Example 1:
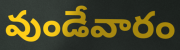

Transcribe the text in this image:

వుండేవారం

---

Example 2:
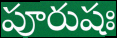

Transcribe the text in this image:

పూరుషః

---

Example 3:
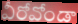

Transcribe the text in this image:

వీరోవోండా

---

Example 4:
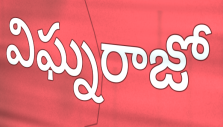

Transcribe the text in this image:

విఘ్నరాజో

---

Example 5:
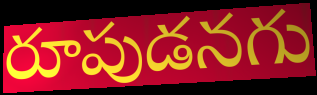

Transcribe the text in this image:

రూపుడనగు